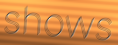
shows